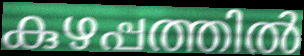
കുഴപ്പത്തിൽ